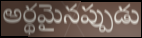
అర్థమైనప్పుడు